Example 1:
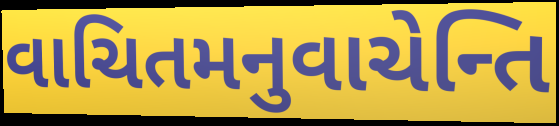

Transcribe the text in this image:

વાચિતમનુવાચેન્તિ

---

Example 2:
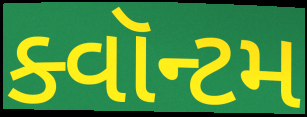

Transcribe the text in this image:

ક્વૉન્ટમ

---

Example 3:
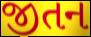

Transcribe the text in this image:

જીતન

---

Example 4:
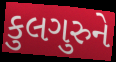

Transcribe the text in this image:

કુલગુરુને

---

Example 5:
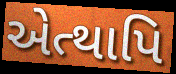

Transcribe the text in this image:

એત્થાપિ